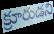
క్రూరుడని